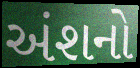
અંશનો